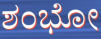
ಶಂಭೋ